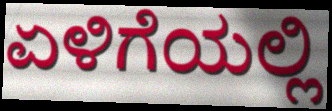
ಏಳಿಗೆಯಲ್ಲಿ